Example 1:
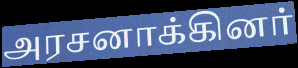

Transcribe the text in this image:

அரசனாக்கினர்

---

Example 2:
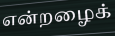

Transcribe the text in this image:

என்றழைக்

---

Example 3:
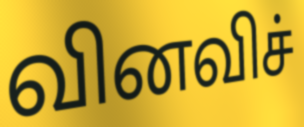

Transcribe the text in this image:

வினவிச்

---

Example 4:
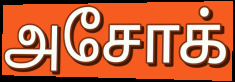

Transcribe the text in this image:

அசோக்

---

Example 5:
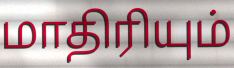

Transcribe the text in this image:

மாதிரியும்